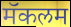
मॅकलम